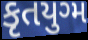
કૃતયુગ્મ